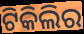
ଟିକିଲିର